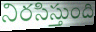
నిరసిస్తుంది